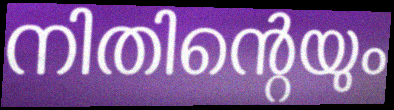
നിതിന്റെയും